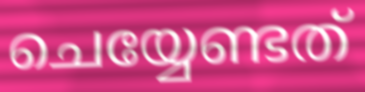
ചെയ്യേണ്ടത്